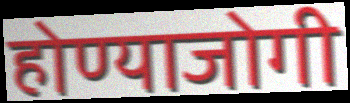
होण्याजोगी